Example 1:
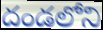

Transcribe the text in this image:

దండలోని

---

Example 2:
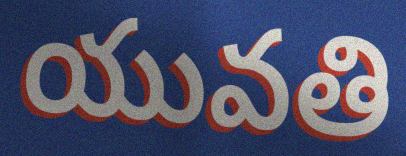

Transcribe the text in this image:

యువతి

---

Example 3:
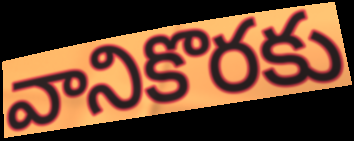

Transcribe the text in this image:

వానికొరకు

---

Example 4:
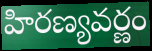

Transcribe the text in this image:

హిరణ్యవర్ణం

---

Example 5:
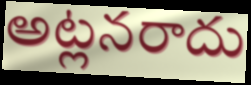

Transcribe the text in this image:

అట్లనరాదు